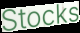
Stocks